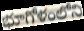
భూగోళంలోని